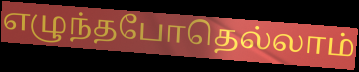
எழுந்தபோதெல்லாம்